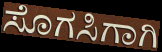
ಸೊಗಸಿಗಾಗಿ